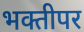
भक्तीपर